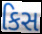
કિસ